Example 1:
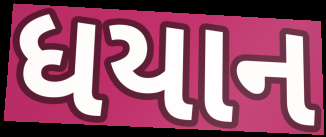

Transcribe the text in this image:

ધયાન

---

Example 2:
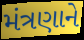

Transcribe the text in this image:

મંત્રણાને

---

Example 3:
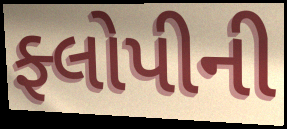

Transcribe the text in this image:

ફ્લોપીની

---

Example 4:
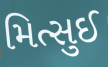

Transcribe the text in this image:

મિત્સુઈ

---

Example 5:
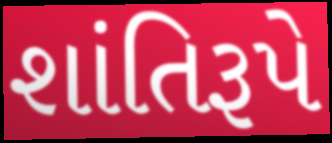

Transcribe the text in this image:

શાંતિરૂપે